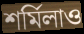
শর্মিলাও